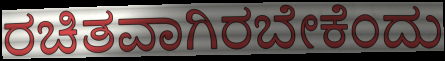
ರಚಿತವಾಗಿರಬೇಕೆಂದು